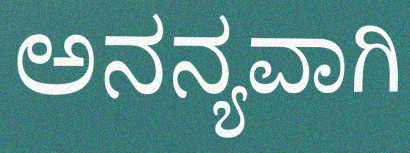
ಅನನ್ಯವಾಗಿ